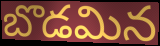
బొడమిన